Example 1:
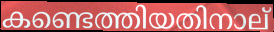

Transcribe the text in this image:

കണ്ടെത്തിയതിനാല്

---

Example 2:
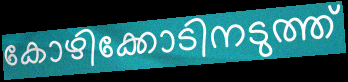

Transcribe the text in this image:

കോഴിക്കോടിനടുത്ത്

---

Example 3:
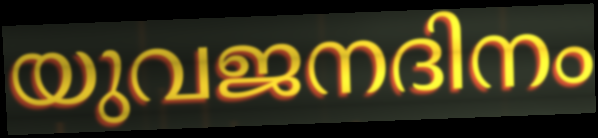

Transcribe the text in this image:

യുവജനദിനം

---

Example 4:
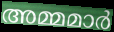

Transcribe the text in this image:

അമ്മമാർ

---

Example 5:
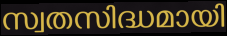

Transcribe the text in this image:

സ്വതസിദ്ധമായി